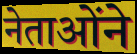
नेताओंने